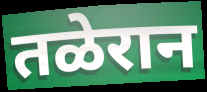
तळेरान